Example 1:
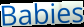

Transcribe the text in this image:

Babies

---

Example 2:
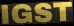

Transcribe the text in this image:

IGST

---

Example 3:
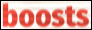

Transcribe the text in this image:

boosts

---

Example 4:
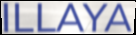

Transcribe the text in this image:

ILLAYA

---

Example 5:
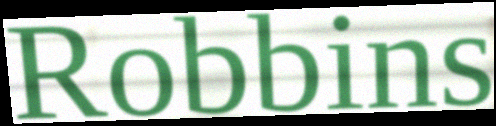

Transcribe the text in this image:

Robbins